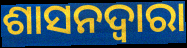
ଶାସନଦ୍ୱାରା